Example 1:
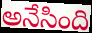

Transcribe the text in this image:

అనేసింది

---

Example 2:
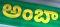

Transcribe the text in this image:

అంబా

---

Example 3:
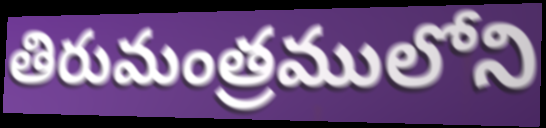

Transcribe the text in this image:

తిరుమంత్రములోని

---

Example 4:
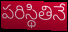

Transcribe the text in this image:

పరిస్థితినే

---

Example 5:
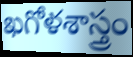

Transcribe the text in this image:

ఖగోళశాస్త్రం